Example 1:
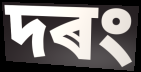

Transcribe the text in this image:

দৰং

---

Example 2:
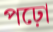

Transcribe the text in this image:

পঢ়ো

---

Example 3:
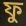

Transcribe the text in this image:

ফু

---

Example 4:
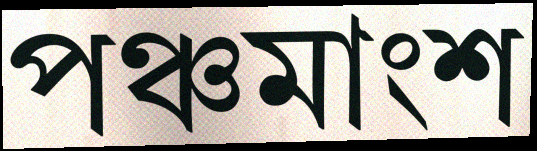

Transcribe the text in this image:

পঞ্চমাংশ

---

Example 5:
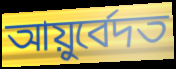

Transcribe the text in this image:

আয়ুৰ্বেদত